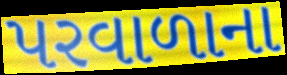
પરવાળાના